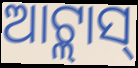
ଆଟ୍ଲାସ୍